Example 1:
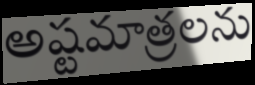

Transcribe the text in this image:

అష్టమాత్రలను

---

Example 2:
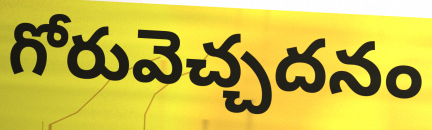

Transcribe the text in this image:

గోరువెచ్చదనం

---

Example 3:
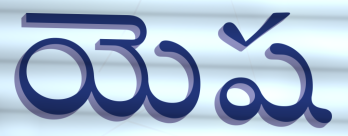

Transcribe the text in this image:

యెష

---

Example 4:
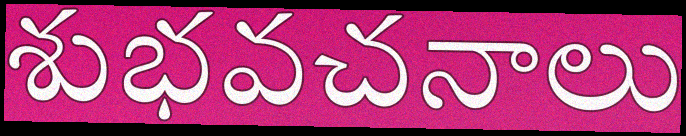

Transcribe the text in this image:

శుభవచనాలు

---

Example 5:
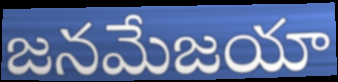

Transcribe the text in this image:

జనమేజయా